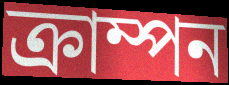
ক্রাম্পন